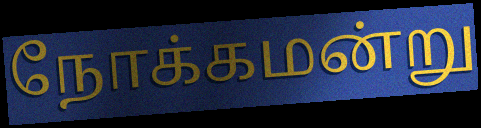
நோக்கமன்று